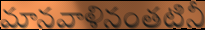
మానవాళినంతటినీ